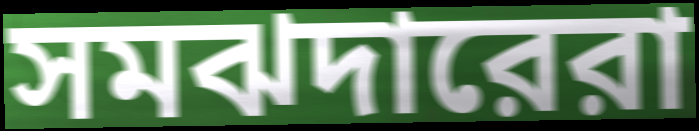
সমঝদারেরা